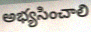
అభ్యసించాలి